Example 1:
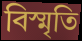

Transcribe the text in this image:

বিস্মৃতি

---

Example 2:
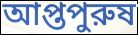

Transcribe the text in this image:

আপ্তপুরুষ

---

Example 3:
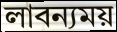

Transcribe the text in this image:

লাবন্যময়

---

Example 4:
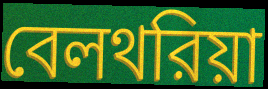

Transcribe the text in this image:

বেলথরিয়া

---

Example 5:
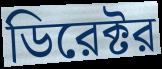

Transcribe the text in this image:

ডিরেক্টর